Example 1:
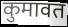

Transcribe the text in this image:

कुमावत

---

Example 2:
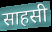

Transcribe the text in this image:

साहसी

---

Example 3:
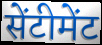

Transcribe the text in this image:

सेंटीमेंट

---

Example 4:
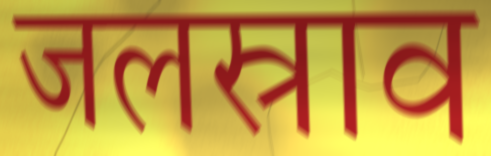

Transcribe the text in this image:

जलस्राव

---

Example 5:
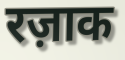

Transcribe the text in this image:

रज़ाक